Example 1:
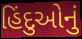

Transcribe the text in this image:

હિંદુઓનું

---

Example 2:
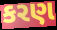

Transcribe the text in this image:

કરણ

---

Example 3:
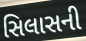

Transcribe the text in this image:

સિલાસની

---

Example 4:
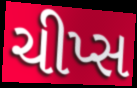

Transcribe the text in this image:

ચીપ્સ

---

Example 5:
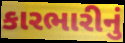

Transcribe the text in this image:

કારભારીનું